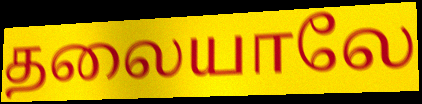
தலையாலே